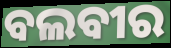
ବଲବୀର